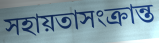
সহায়তাসংক্রান্ত